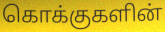
கொக்குகளின்